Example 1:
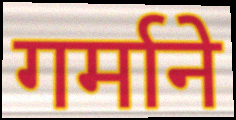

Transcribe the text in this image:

गर्माने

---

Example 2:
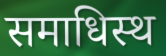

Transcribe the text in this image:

समाधिस्थ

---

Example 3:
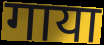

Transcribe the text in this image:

गाया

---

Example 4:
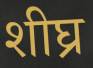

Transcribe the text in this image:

शीघ्र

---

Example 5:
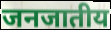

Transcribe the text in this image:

जनजातीय